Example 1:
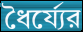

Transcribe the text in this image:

ধৈর্য্যের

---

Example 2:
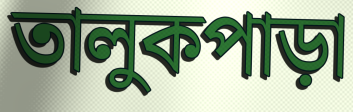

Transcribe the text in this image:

তালুকপাড়া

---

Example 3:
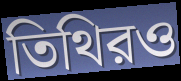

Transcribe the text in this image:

তিথিরও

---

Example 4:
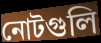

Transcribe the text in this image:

নোটগুলি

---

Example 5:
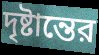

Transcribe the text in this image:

দৃষ্টান্তের